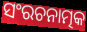
ସଂରଚନାତ୍ମକ